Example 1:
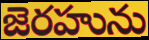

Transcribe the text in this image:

జెరహును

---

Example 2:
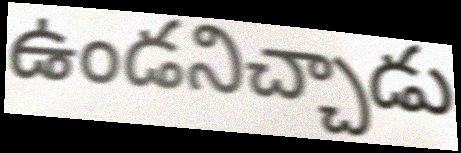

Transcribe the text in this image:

ఉండనిచ్చాడు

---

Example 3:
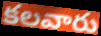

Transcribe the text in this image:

కలవారు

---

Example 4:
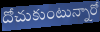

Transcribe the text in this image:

దోచుకుంటున్నారో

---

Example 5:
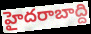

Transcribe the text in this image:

హైదరాబాద్ది